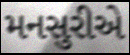
મનસુરીએ